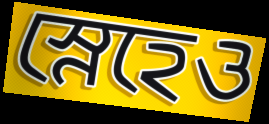
স্নেহেও